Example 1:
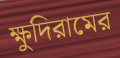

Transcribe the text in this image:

ক্ষুদিরামের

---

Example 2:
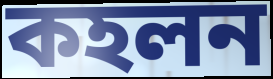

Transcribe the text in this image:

কহলন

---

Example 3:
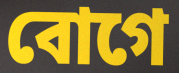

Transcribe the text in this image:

বোগে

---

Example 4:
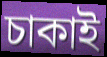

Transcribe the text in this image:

চাকাই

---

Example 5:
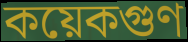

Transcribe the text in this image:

কয়েকগুণ